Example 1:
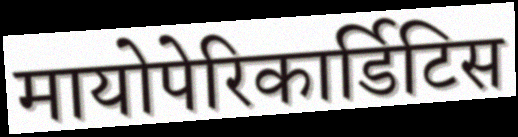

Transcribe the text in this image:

मायोपेरिकार्डिटिस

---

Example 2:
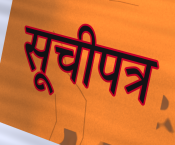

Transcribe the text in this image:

सूचीपत्र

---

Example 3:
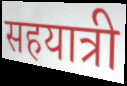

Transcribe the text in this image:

सहयात्री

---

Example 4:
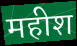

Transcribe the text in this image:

महीश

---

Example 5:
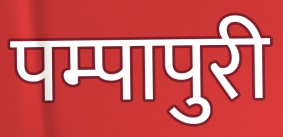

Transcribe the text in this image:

पम्पापुरी